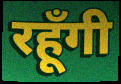
रहूँगी